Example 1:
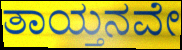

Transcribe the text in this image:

ತಾಯ್ತನವೇ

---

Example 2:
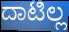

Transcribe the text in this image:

ದಾಟಿಲ್ಲ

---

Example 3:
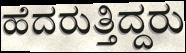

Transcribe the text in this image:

ಹೆದರುತ್ತಿದ್ದರು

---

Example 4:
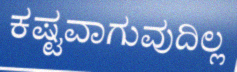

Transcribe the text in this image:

ಕಷ್ಟವಾಗುವುದಿಲ್ಲ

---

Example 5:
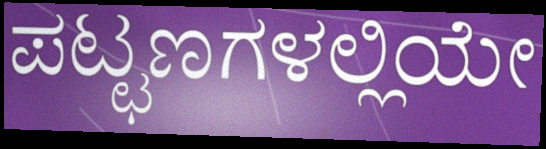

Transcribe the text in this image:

ಪಟ್ಟಣಗಳಲ್ಲಿಯೇ